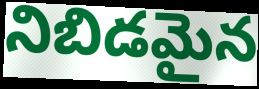
నిబిడమైన